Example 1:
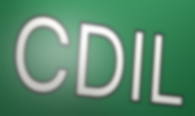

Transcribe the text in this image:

CDIL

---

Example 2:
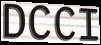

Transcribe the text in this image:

DCCI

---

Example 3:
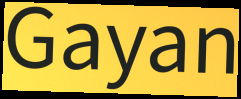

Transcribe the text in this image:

Gayan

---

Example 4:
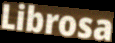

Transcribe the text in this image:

Librosa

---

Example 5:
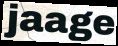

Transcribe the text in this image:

jaage